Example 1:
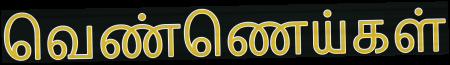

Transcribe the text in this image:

வெண்ணெய்கள்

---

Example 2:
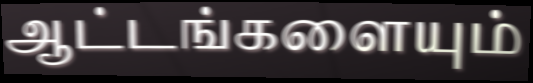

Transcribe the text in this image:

ஆட்டங்களையும்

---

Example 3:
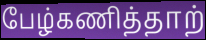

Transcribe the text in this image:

பேழ்கணித்தாற்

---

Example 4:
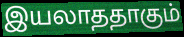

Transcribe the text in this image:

இயலாததாகும்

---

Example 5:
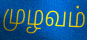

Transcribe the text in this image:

முழவம்